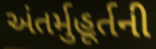
અંતર્મુહૂર્તની